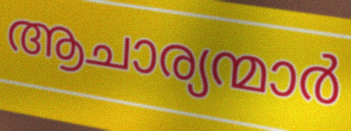
ആചാര്യന്മാർ